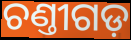
ଚଣ୍ତୀଗଡ଼